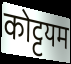
कोट्टयम